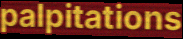
palpitations